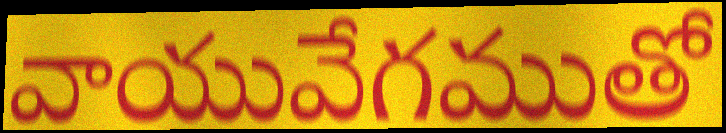
వాయువేగముతో